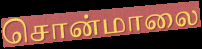
சொன்மாலை